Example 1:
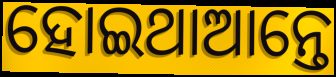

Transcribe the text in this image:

ହୋଇଥାଆନ୍ତେ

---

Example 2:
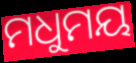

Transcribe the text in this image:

ମଧୁମୟ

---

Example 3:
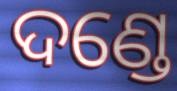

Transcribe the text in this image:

ଦଣ୍ଡେ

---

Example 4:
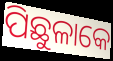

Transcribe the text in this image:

ପିଛୁଳାକେ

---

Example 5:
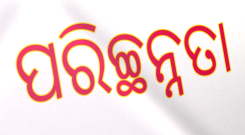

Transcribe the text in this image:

ପରିଚ୍ଛନ୍ନତା